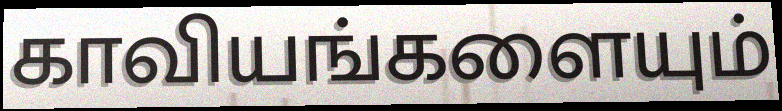
காவியங்களையும்